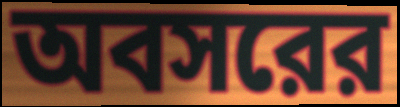
অবসরের